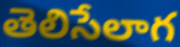
తెలిసేలాగ